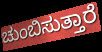
ಚುಂಬಿಸುತ್ತಾರೆ